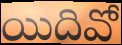
యిదివో